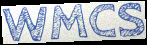
WMCS